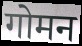
गोमन